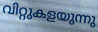
വിറ്റുകളയുന്നു